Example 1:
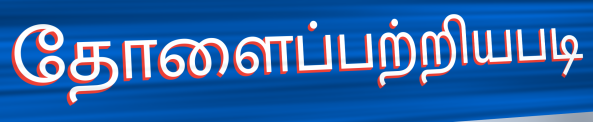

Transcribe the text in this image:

தோளைப்பற்றியபடி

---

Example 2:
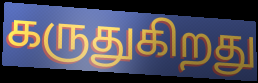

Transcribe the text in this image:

கருதுகிறது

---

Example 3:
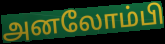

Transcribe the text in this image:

அனலோம்பி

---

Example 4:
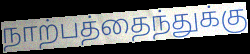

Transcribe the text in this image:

நாற்பத்தைந்துக்கு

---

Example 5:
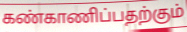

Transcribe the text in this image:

கண்காணிப்பதற்கும்